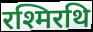
रश्मिरथि